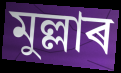
মুল্লাৰ